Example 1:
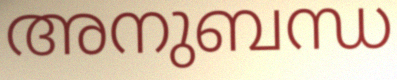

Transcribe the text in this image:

അനുബന്ധ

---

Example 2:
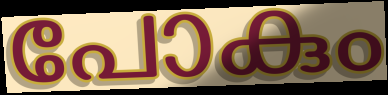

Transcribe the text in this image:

പോകും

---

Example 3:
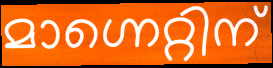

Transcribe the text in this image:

മാഗ്നെറ്റിന്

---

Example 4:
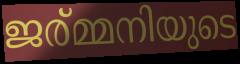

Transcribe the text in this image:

ജര്മ്മനിയുടെ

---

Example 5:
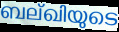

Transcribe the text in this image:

ബല്ഖിയുടെ